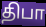
திபா